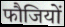
फौजियों